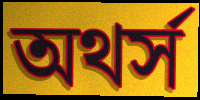
অথর্স